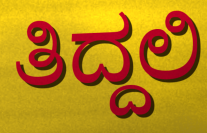
ತಿದ್ದಲಿ